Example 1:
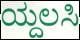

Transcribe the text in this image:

ಯ್ದಲಸಿ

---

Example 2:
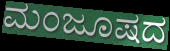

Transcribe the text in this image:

ಮಂಜೂಷದ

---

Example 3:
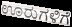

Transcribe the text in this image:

ಊರುಗಳಿಗೆ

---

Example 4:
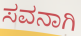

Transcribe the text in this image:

ಸವನಾಗಿ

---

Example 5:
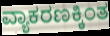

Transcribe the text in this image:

ವ್ಯಾಕರಣಕ್ಕಿಂತ